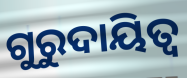
ଗୁରୁଦାୟିତ୍ଵ